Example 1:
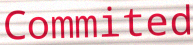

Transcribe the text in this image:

Commited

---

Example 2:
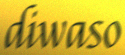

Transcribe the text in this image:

diwaso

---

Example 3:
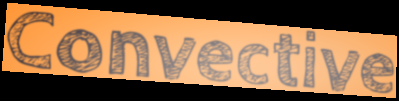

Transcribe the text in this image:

Convective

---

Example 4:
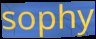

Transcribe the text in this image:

sophy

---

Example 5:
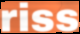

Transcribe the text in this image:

riss